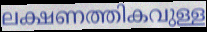
ലക്ഷണത്തികവുള്ള